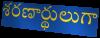
శరణార్థులుగా